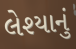
લેશ્યાનું